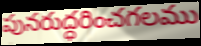
పునరుద్ధరించగలము